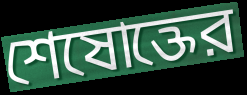
শেষোক্তের